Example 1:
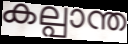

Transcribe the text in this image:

കല്പാന്ത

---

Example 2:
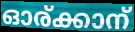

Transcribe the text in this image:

ഓര്ക്കാന്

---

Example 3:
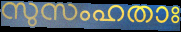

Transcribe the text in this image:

സുസംഹതാഃ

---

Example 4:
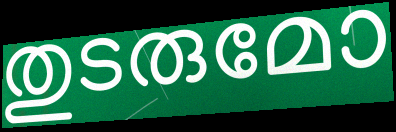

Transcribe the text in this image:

തുടരുമോ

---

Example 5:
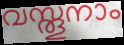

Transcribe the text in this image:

വസ്തൂനാം